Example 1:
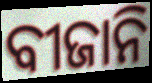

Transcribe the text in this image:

ବୀଜାନି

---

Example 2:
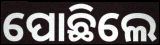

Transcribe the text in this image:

ପୋଛିଲେ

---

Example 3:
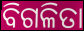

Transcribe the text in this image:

ବିଗଳିତା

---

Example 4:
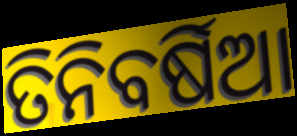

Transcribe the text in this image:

ତିନିବର୍ଷିଆ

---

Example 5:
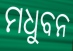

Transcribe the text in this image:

ମଧୁବନ